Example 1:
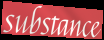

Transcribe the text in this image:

substance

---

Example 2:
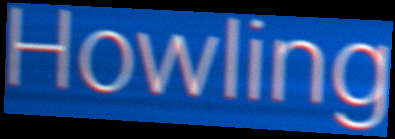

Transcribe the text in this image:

Howling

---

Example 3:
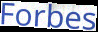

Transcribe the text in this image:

Forbes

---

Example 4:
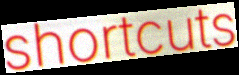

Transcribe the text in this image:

shortcuts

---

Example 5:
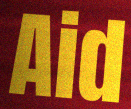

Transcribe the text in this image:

Aid